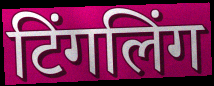
टिंगलिंग